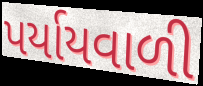
પર્યાયવાળી